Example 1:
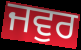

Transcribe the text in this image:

ਜਵੁਰ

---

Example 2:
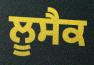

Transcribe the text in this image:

ਲੂਸੈਕ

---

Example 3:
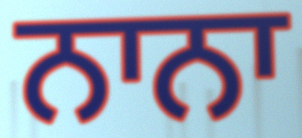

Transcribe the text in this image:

ਨਾਨਾ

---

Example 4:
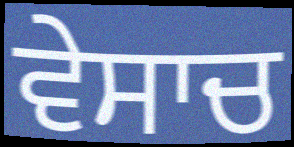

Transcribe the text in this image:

ਵੇਸਾਚ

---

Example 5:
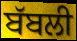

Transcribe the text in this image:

ਬੱਬਲੀ